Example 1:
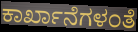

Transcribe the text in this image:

ಕಾರ್ಖಾನೆಗಳಂತೆ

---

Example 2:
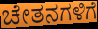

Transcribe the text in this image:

ಚೇತನಗಳಿಗೆ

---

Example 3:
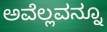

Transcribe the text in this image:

ಅವೆಲ್ಲವನ್ನೂ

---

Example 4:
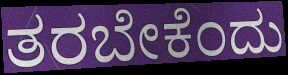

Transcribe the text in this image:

ತರಬೇಕೆಂದು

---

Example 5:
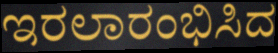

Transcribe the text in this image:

ಇರಲಾರಂಭಿಸಿದ